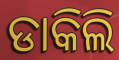
ଡାକିଲି